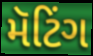
મૅટિંગ